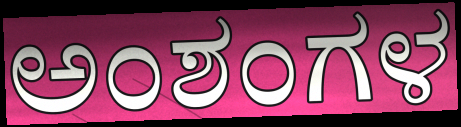
ಅಂಶಂಗಳ